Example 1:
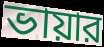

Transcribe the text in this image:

ভায়ার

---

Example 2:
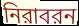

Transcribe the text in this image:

নিরাবরন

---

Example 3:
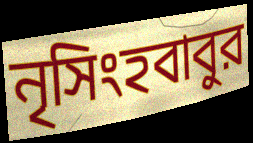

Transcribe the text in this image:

নৃসিংহবাবুর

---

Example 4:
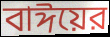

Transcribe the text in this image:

বাঈয়ের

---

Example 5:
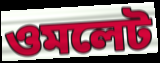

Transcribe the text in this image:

ওমলেট